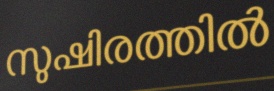
സുഷിരത്തിൽ